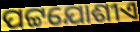
ପଟ୍ଟଯୋଶୀଏ